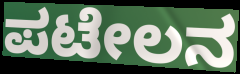
ಪಟೇಲನ